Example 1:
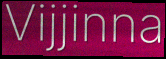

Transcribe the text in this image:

Vijjinna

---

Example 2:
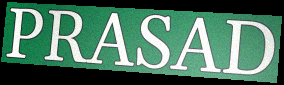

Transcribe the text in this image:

PRASAD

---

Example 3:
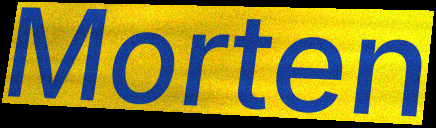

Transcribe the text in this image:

Morten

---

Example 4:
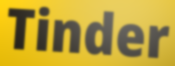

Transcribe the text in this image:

Tinder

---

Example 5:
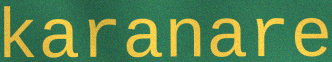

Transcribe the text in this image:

karanare